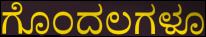
ಗೊಂದಲಗಳೂ